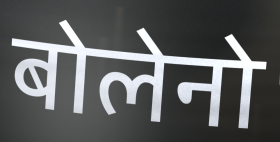
बोलेनो